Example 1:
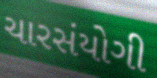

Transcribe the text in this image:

ચારસંયોગી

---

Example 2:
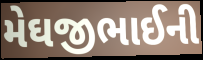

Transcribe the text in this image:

મેઘજીભાઈની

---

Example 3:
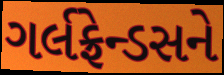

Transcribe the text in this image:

ગર્લફ્રેન્ડસને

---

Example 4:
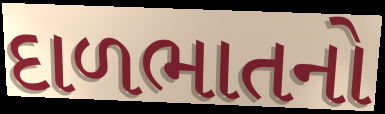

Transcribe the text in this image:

દાળભાતનો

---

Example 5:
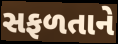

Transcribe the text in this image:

સફળતાને